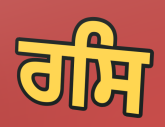
ਰਸਿ